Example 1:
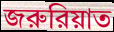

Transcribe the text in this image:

জরুরিয়াত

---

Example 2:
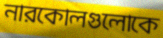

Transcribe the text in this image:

নারকোলগুলোকে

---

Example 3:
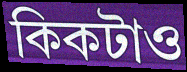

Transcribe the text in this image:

কিকটাও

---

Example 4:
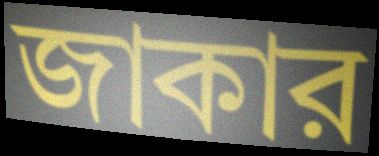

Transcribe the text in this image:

জাকার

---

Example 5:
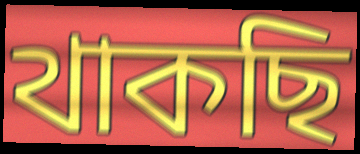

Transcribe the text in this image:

থাকছি